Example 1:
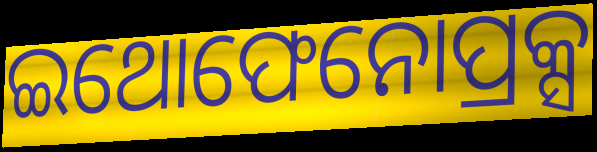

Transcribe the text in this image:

ଇଥୋଫେନୋପ୍ରକ୍ସ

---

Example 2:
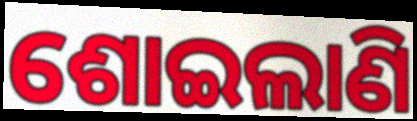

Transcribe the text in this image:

ଶୋଇଲାଣି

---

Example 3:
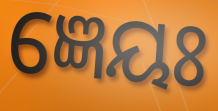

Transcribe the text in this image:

ଜ୍ଞେୟଃ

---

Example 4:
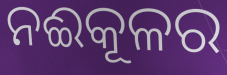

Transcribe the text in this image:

ନଈକୂଳର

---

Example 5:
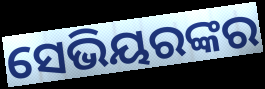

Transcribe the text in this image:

ସେଭିୟରଙ୍କର